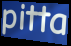
pitta